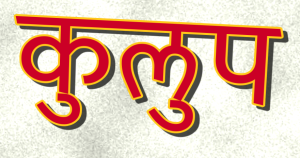
कुलुप